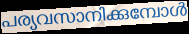
പര്യവസാനിക്കുമ്പോൾ